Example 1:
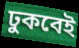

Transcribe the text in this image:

ঢুকবেই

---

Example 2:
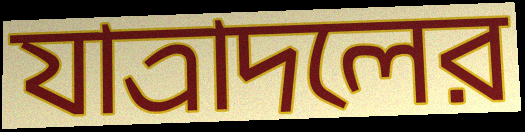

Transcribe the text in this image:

যাত্রাদলের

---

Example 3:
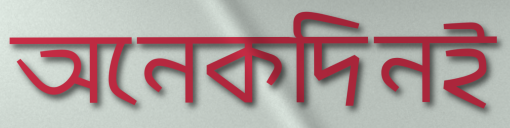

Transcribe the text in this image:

অনেকদিনই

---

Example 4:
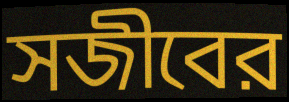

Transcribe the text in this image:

সজীবের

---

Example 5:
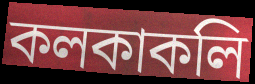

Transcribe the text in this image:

কলকাকলি